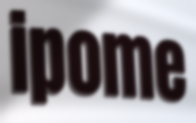
ipome